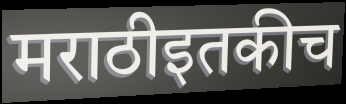
मराठीइतकीच